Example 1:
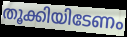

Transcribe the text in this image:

തൂക്കിയിടേണം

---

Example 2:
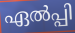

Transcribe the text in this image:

ഏൽപ്പി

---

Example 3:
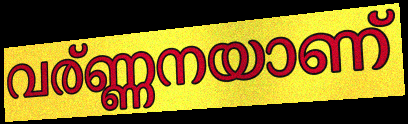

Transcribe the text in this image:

വര്ണ്ണനയാണ്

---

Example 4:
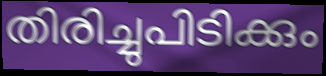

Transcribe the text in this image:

തിരിച്ചുപിടിക്കും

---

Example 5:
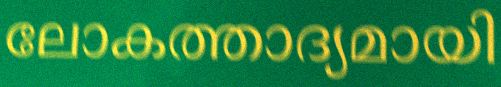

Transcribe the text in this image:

ലോകത്താദ്യമായി